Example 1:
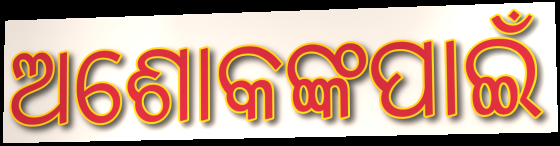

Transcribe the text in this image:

ଅଶୋକଙ୍କପାଇଁ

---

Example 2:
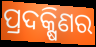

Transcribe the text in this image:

ପ୍ରଦକ୍ଷିଣର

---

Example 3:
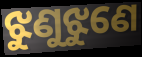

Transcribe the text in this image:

ଝୁଣୁଝୁଣେ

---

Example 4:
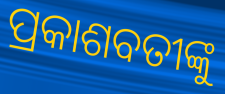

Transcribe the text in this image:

ପ୍ରକାଶବତୀଙ୍କୁ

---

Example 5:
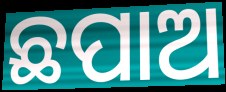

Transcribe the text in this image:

ଛପାଅ